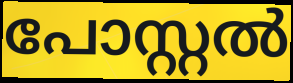
പോസ്റ്റൽ